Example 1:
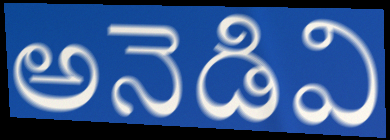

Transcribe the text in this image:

అనెడివి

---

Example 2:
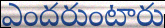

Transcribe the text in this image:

ఎందరుంటారు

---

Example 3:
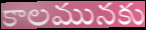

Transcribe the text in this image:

కాలమునకు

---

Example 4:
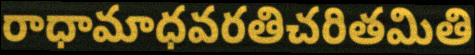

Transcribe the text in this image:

రాధామాధవరతిచరితమితి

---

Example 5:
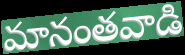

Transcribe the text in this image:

మానంతవాడి